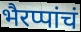
भैरप्पांचं